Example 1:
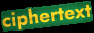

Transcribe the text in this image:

ciphertext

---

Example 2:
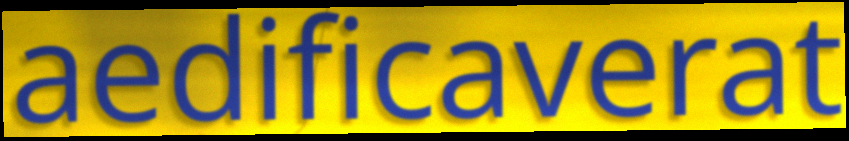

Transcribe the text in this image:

aedificaverat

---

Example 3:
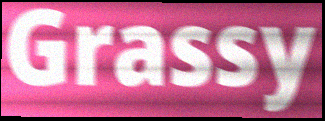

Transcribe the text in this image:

Grassy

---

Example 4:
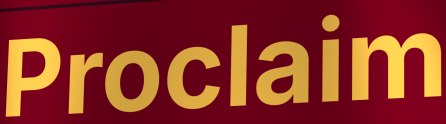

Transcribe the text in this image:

Proclaim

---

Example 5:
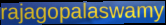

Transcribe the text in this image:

rajagopalaswamy